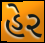
હેર